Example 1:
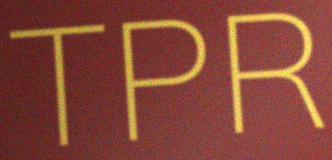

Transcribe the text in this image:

TPR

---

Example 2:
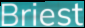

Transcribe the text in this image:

Briest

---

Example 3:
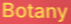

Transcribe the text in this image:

Botany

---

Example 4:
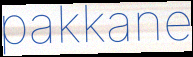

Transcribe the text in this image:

pakkane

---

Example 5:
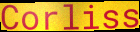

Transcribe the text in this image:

Corliss